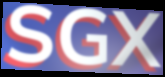
SGX